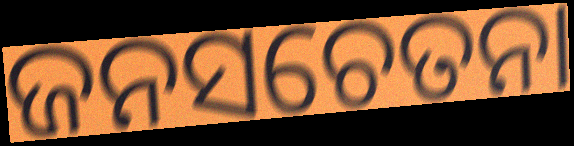
ଜନସଚେତନା